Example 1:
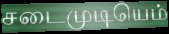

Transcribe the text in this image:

சடைமுடியெம்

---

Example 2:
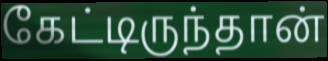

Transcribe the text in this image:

கேட்டிருந்தான்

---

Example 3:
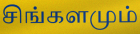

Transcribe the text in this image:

சிங்களமும்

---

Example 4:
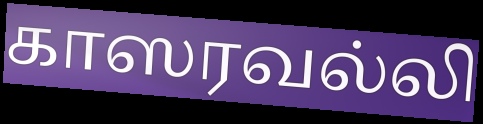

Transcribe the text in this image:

காஸரவல்லி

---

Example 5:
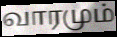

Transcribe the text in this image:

வாரமும்